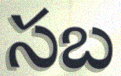
సబ